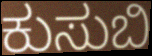
ಕುಸುಬಿ